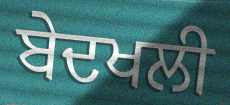
ਬੇਦਖਲੀ